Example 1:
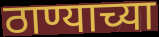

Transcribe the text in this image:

ठाण्याच्या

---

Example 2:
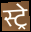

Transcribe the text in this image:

स्ट्रे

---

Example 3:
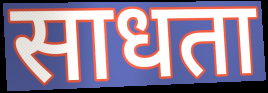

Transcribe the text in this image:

साधता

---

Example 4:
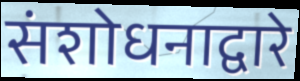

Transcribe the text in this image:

संशोधनाद्वारे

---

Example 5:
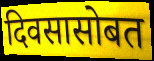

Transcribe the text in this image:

दिवसासोबत